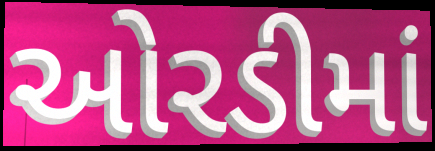
ઓરડીમાં